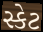
સ્કેટ